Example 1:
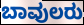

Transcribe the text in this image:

ಬಾವುಲರು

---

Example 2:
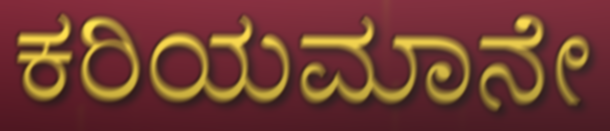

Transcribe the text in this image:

ಕರಿಯಮಾನೇ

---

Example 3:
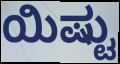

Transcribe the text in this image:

ಯಿಷ್ಟು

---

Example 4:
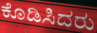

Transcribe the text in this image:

ಕೊಡಿಸಿದರು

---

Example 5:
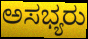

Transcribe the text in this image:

ಅಸಭ್ಯರು